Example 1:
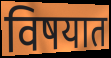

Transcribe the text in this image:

विषयात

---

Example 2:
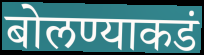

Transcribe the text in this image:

बोलण्याकडं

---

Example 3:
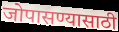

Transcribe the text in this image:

जोपासण्यासाठी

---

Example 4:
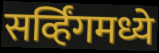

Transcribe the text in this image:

सर्व्हिंगमध्ये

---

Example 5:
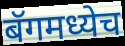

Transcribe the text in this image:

बॅगमध्येच